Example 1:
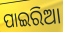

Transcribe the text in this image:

ପାଇରିଆ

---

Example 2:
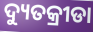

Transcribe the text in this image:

ଦ୍ୟୁତକ୍ରୀଡା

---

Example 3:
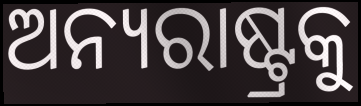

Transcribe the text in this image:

ଅନ୍ୟରାଷ୍ଟ୍ରକୁ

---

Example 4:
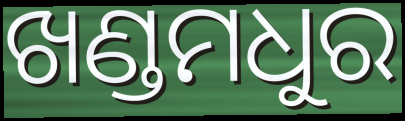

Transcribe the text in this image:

ଖଣ୍ଡମଧୁର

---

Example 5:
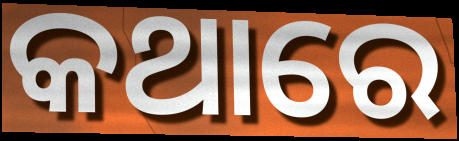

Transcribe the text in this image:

କଥାରେ